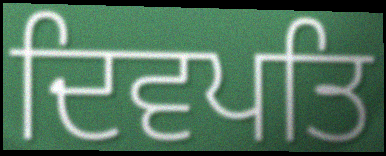
ਦਿਵਪਤਿ